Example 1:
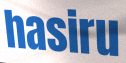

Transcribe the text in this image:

hasiru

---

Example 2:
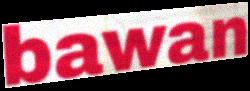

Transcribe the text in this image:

bawan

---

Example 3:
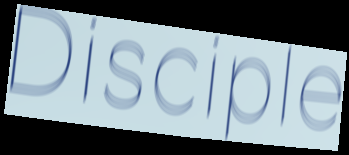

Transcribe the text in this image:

Disciple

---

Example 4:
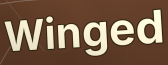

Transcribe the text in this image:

Winged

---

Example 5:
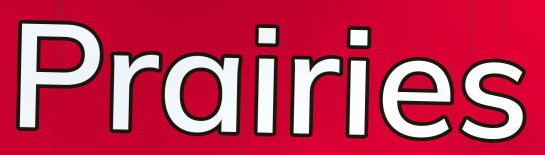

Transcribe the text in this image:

Prairies